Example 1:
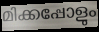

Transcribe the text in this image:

മിക്കപ്പോളും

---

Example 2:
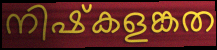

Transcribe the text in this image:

നിഷ്‌കളങ്കത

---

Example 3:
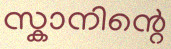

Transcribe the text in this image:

സ്കാനിന്റെ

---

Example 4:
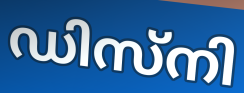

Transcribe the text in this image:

ഡിസ്നി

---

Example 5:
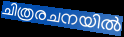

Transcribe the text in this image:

ചിത്രരചനയിൽ